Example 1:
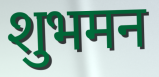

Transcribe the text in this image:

शुभमन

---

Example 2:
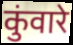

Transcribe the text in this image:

कुंवारे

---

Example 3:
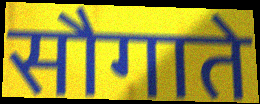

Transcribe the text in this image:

सौगाते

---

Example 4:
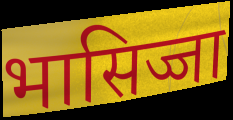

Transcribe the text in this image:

भासिज्जा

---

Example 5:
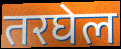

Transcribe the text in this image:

तरघेल